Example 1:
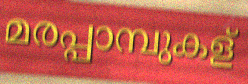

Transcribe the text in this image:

മരപ്പാമ്പുകള്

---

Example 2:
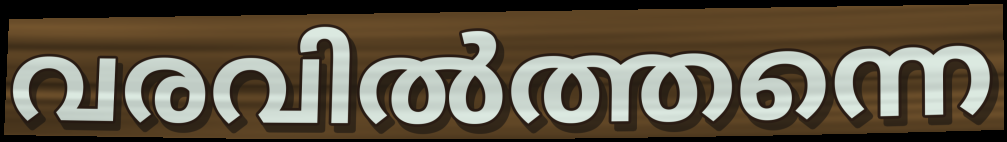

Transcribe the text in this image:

വരവിൽത്തന്നെ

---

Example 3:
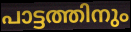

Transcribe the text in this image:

പാട്ടത്തിനും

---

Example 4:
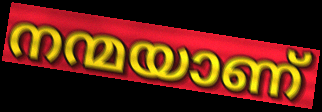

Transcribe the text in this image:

നന്മയാണ്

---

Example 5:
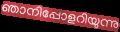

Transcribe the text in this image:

ഞാനിപ്പോളറിയുന്നു